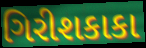
ગિરીશકાકા